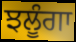
ਝਲੂੰਗਾ